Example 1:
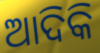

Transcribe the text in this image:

ଆଦିକି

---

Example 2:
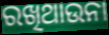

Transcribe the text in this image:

ରଖିଥାଉନା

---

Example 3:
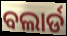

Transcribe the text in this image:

ବଲାର୍ଡ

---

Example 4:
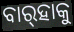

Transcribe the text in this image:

ବାର୍‍ହାକୁ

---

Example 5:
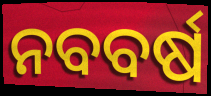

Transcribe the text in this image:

ନବବର୍ଷ